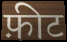
फ़ीट